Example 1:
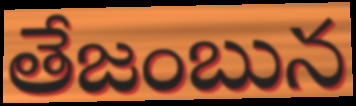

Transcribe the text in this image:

తేజంబున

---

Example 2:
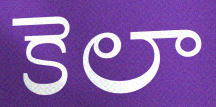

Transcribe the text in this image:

కెలా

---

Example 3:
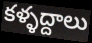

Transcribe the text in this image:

కళ్ళద్దాలు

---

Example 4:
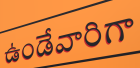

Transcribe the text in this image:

ఉండేవారిగా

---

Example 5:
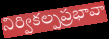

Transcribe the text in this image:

నిర్వికల్పప్రభావా